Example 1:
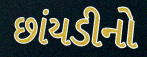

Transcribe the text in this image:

છાંયડીનો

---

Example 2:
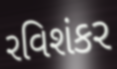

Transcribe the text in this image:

રવિશંકર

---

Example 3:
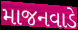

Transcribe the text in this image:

માજનવાડે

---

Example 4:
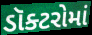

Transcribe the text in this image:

ડૉક્ટરોમાં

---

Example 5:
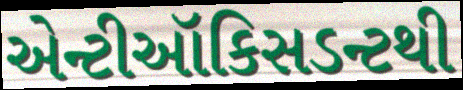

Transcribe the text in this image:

એન્ટીઑકિસડન્ટથી